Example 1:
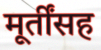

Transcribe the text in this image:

मूर्तींसह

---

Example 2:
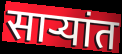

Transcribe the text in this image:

साऱ्यांत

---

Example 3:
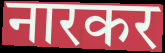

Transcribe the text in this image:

नारकर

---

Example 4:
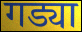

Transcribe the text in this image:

गड्या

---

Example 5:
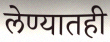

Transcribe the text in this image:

लेण्यातही